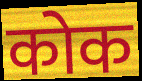
कोक